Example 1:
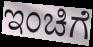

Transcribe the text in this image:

ಇಂಚಿಗೆ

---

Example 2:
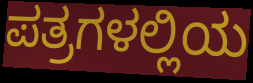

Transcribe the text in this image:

ಪತ್ರಗಳಲ್ಲಿಯ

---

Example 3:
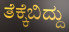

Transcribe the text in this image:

ತೆಕ್ಕೆಬಿದ್ದು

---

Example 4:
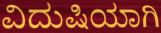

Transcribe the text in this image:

ವಿದುಷಿಯಾಗಿ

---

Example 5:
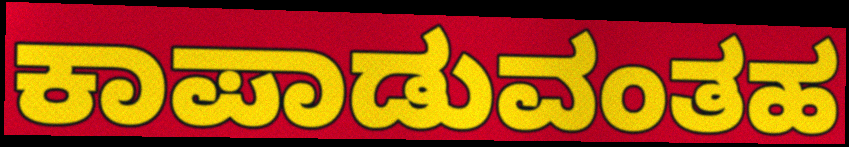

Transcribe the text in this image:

ಕಾಪಾಡುವಂತಹ